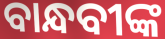
ବାନ୍ଧବୀଙ୍କ